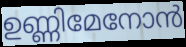
ഉണ്ണിമേനോൻ